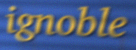
ignoble